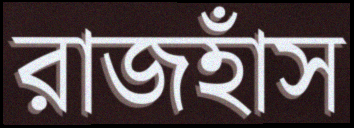
রাজহাঁস